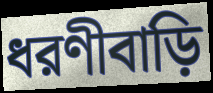
ধরণীবাড়ি